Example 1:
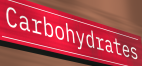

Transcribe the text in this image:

Carbohydrates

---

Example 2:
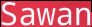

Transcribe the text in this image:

Sawan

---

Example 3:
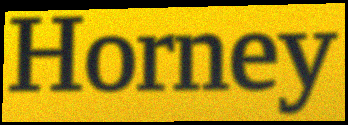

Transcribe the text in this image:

Horney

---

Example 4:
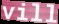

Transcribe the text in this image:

vill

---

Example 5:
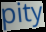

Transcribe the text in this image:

pity